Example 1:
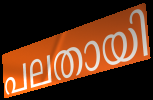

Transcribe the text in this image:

പലതായി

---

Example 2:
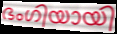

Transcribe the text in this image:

ഭംഗിയായി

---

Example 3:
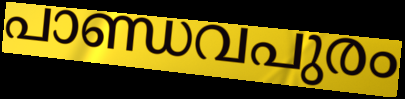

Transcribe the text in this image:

പാണ്ഡവപുരം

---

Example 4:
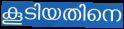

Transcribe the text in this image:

കൂടിയതിനെ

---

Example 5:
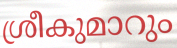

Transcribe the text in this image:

ശ്രീകുമാറും